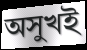
অসুখই